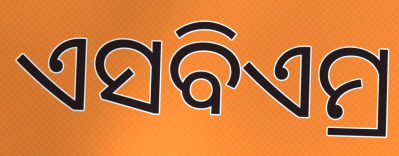
ଏସବିଏମ୍ର